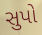
સુપો